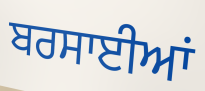
ਬਰਸਾਈਆਂ